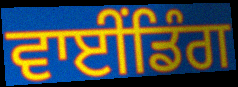
ਵਾਈਂਡਿੰਗ